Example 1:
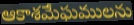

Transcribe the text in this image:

ఆకాశమేఘములను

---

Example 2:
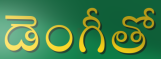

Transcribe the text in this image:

డెంగీతో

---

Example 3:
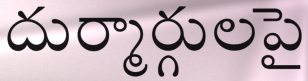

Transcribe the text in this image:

దుర్మార్గులపై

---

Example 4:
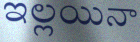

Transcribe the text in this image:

ఇల్లయినా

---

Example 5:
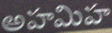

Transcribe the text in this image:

అహమిహ